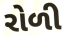
રોળી